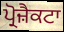
ਪ੍ਰੋਜ਼ੈਕਟਾ